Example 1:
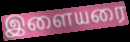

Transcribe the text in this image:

இளையரை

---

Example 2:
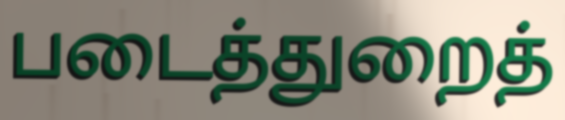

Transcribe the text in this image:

படைத்துறைத்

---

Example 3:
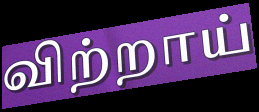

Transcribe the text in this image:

விற்றாய்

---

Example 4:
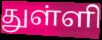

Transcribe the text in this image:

துள்ளி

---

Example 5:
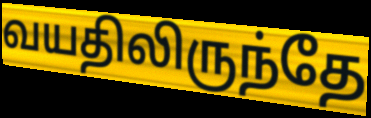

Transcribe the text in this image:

வயதிலிருந்தே